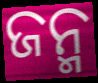
ଜନ୍ମ